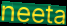
neeta